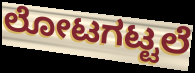
ಲೋಟಗಟ್ಟಲೆ